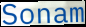
Sonam